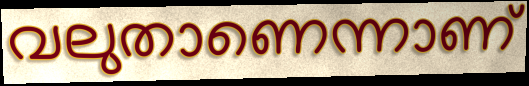
വലുതാണെന്നാണ്